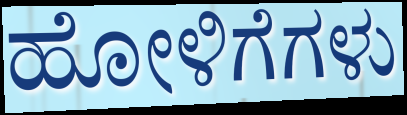
ಹೋಳಿಗೆಗಳು